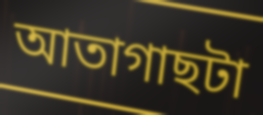
আতাগাছটা